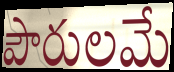
పౌరులమే